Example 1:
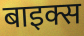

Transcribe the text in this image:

बाइक्स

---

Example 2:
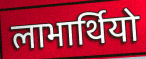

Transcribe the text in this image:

लाभार्थियो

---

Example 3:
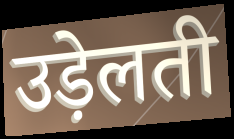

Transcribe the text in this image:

उड़ेलती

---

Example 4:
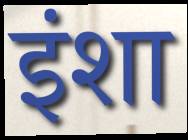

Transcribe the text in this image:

इंशा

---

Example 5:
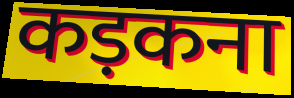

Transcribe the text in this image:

कड़कना